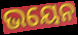
ଭୟେନ